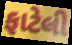
ફાટેલી